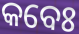
କବେଃ